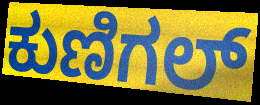
ಕುಣಿಗಲ್